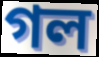
গল